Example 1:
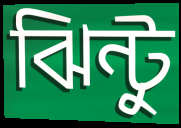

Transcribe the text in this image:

ঝিন্টু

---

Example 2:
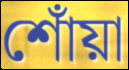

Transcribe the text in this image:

শোঁয়া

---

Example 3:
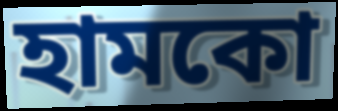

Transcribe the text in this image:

হামকো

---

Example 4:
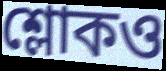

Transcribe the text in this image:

শ্লোকও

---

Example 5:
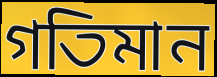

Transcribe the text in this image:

গতিমান